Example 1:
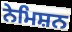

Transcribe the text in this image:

ਨੇਮਿਸ਼ਨ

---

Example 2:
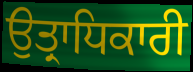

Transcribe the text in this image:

ਉਤ੍ਰਾਧਿਕਾਰੀ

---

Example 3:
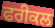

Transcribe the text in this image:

ਫਰੀਕਲ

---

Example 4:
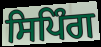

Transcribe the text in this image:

ਸਿਪਿੰਗ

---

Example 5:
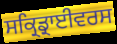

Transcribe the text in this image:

ਸਕ੍ਰਿਡ੍ਰਾਈਵਰਸ